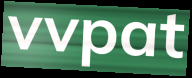
vvpat